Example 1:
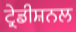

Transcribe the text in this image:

ਟ੍ਰੇਡੀਸ਼ਨਲ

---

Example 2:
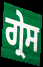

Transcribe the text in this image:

ਗ੍ਰੇਸ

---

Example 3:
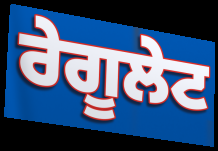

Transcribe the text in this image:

ਰੇਗੂਲੇਟ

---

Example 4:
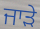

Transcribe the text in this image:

ਜਾੜੇ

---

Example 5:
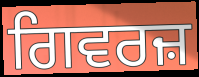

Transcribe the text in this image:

ਗਿਵਰਜ਼